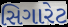
સિગારેટ